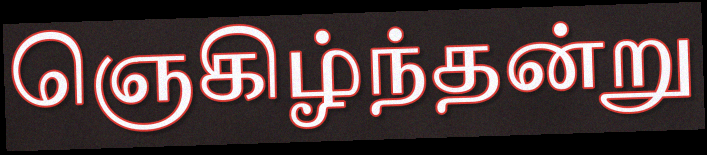
ஞெகிழ்ந்தன்று